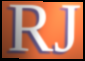
RJ